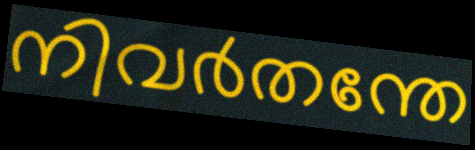
നിവർതന്തേ